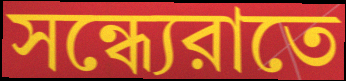
সন্ধ্যেরাতে